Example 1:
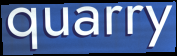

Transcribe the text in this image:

quarry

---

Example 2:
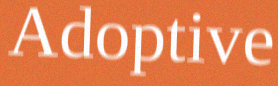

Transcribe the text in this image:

Adoptive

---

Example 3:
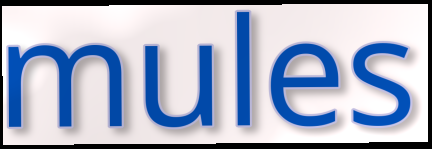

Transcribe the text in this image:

mules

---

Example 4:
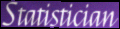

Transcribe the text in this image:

Statistician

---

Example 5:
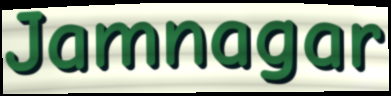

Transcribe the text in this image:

Jamnagar